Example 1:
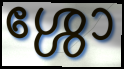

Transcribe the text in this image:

ശ്ശോ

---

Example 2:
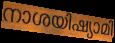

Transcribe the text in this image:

നാശയിഷ്യാമി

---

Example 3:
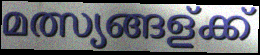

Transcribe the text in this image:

മത്സ്യങ്ങള്ക്ക്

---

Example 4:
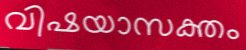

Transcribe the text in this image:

വിഷയാസക്തം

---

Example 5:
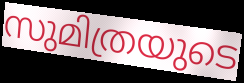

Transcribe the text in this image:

സുമിത്രയുടെ